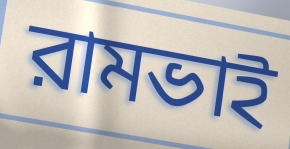
রামভাই